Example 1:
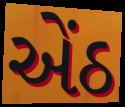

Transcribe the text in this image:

એંઠ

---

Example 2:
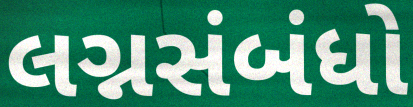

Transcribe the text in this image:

લગ્નસંબંધો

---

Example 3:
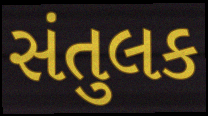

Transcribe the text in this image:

સંતુલક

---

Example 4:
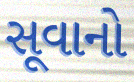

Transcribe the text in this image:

સૂવાનો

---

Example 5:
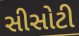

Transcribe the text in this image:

સીસોટી